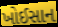
ખોઈસાન